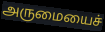
அருமையைச்